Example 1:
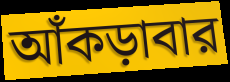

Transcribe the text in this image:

আঁকড়াবার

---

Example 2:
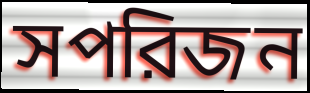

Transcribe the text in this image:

সপরিজন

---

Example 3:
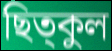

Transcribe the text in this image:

ছিত্কুল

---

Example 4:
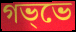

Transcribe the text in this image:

গভ্ভে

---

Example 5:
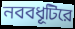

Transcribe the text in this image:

নববধূটিরে